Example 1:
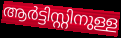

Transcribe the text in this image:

ആർട്ടിസ്റ്റിനുള്ള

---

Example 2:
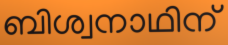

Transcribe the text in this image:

ബിശ്വനാഥിന്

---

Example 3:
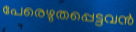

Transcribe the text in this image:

പേരെഴുതപ്പെട്ടവൻ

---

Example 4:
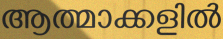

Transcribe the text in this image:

ആത്മാക്കളിൽ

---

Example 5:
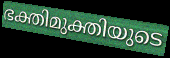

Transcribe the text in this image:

ഭക്തിമുക്തിയുടെ